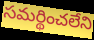
సమర్థించలేని